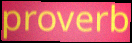
proverb